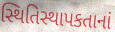
સ્થિતિસ્થાપકતાનાં